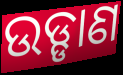
ଉଡ୍ଡାଣ